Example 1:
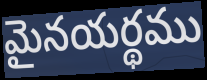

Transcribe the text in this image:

మైనయర్థము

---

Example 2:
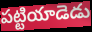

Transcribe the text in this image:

పట్టియాడెడు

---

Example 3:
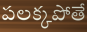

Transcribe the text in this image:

పలక్కపోతే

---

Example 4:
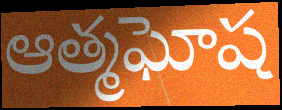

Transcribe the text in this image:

ఆత్మఘోష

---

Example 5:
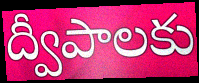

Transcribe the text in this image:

ద్వీపాలకు